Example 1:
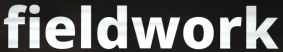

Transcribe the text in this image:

fieldwork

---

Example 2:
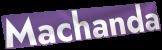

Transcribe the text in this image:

Machanda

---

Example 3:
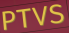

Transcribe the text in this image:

PTVS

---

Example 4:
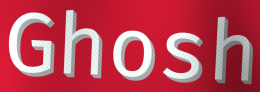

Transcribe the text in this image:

Ghosh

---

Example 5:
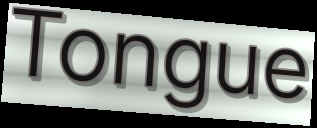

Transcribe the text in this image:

Tongue